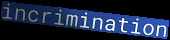
incrimination